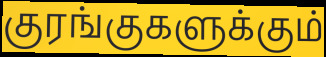
குரங்குகளுக்கும்